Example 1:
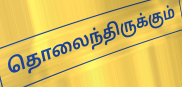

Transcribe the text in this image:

தொலைந்திருக்கும்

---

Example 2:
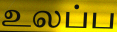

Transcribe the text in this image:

உலப்ப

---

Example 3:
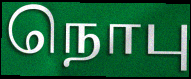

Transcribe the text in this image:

நொபு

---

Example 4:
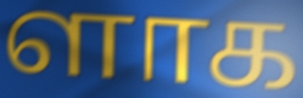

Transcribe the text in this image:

ளாக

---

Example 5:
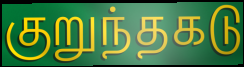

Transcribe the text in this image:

குறுந்தகடு